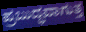
ಪ್ರಬುದ್ಧವಾಗುತ್ತ